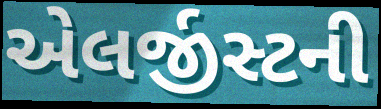
એલર્જીસ્ટની